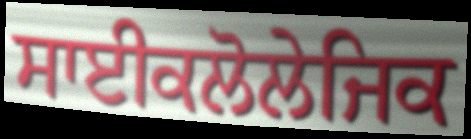
ਸਾਈਕਲੋਲੇਜਿਕ